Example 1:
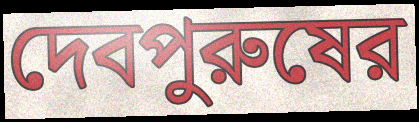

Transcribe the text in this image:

দেবপুরুষের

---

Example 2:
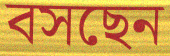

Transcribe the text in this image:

বসছেন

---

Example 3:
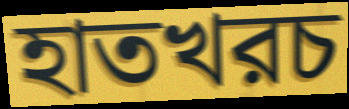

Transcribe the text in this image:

হাতখরচ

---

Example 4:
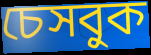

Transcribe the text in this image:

চেসবুক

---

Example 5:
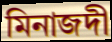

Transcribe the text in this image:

মিনাজদী